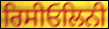
ਰਿਸੀਓਲਿਨੀ